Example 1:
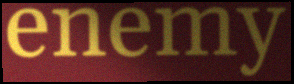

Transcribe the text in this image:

enemy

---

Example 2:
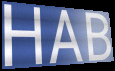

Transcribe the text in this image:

HAB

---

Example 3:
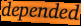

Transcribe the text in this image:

depended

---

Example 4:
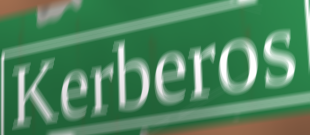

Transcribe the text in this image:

Kerberos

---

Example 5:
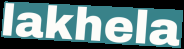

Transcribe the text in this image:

lakhela